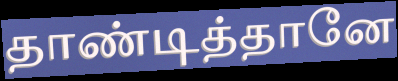
தாண்டித்தானே